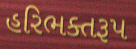
હરિભક્તરૂપ